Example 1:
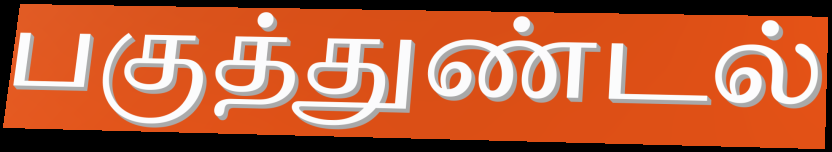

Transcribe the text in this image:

பகுத்துண்டல்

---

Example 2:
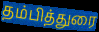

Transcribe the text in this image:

தம்பித்துரை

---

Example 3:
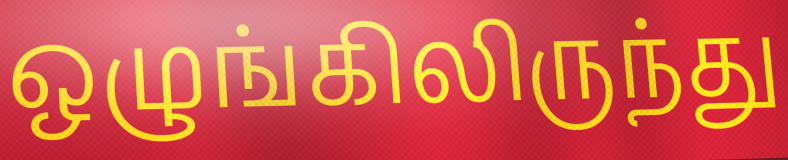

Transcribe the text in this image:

ஒழுங்கிலிருந்து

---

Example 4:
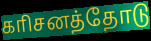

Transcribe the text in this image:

கரிசனத்தோடு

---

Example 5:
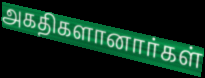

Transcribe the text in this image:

அகதிகளானார்கள்